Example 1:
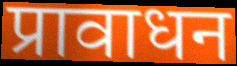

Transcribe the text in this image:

प्रावाधन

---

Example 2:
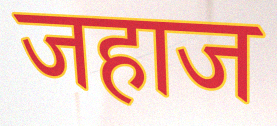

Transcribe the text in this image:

जहाज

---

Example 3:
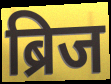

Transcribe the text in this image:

ब्रिज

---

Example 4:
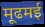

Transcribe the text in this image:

मूढमई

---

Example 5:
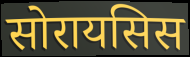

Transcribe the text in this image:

सोरायसिस